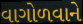
વાગોળવાને